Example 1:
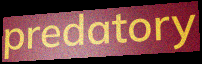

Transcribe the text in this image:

predatory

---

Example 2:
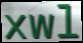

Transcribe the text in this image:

xwl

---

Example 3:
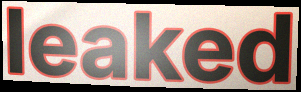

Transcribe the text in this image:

leaked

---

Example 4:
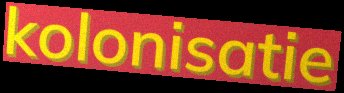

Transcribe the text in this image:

kolonisatie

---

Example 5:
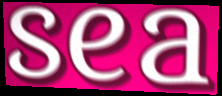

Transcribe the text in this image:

sea